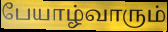
பேயாழ்வாரும்